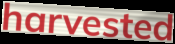
harvested